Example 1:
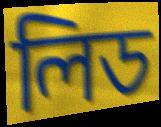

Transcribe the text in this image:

লিড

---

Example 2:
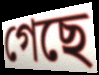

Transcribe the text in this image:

গেছে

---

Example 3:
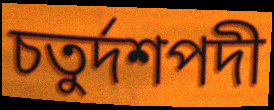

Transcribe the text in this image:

চতুর্দশপদী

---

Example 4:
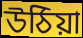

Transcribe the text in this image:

উঠিয়া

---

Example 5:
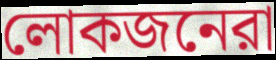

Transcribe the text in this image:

লোকজনেরা